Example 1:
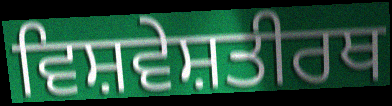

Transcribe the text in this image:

ਵਿਸ਼ਵੇਸ਼ਤੀਰਥ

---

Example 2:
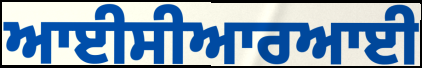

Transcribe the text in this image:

ਆਈਸੀਆਰਆਈ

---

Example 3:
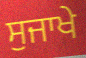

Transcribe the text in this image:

ਸੁਜਾਖੇ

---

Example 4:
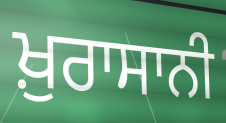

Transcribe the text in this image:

ਖ਼ੁਰਾਸਾਨੀ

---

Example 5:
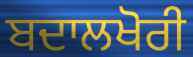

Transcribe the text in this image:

ਬਦਾਲਖੋਰੀ